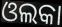
ଓଲକା